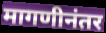
मागणीनंतर